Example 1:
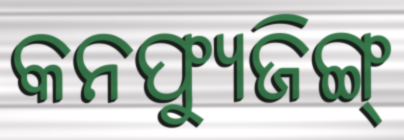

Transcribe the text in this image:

କନଫ୍ୟୁଜିଙ୍ଗ୍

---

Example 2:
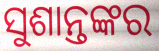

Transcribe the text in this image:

ସୁଶାନ୍ତଙ୍କର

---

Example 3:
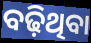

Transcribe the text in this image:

ବଢ଼ିଥିବା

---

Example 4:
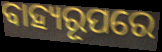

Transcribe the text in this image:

ବାହ୍ୟରୂପରେ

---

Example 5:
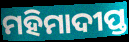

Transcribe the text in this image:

ମହିମାଦୀପ୍ତ